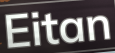
Eitan